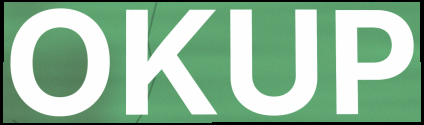
OKUP